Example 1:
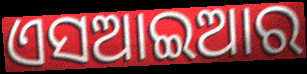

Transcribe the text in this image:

ଏସଆଇଆର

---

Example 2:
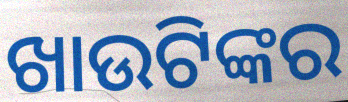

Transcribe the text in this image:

ଖାଉଟିଙ୍କର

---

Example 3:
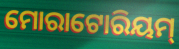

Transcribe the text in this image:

ମୋରାଟୋରିୟମ୍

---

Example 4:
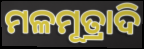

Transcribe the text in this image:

ମଳମୂତ୍ରାଦି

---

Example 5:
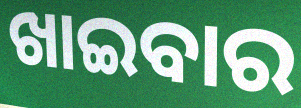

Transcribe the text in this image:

ଖାଇବାର